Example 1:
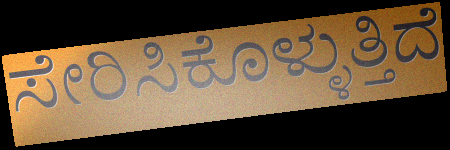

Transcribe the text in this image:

ಸೇರಿಸಿಕೊಳ್ಳುತ್ತಿದೆ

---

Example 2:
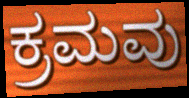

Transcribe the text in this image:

ಕ್ರಮವು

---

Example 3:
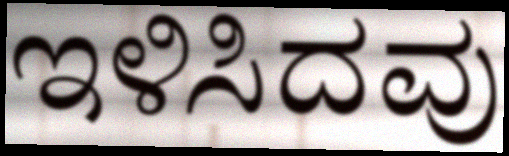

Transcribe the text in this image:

ಇಳಿಸಿದವು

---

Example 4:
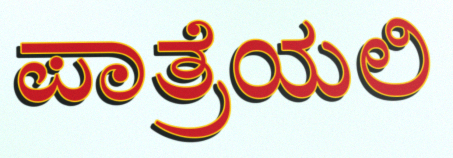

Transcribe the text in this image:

ಪಾತ್ರೆಯಲಿ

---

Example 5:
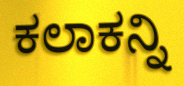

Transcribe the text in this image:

ಕಲಾಕನ್ನಿ